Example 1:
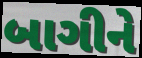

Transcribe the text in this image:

બાગીને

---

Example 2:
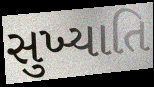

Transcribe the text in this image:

સુખ્યાતિ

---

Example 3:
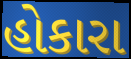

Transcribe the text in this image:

હોકારા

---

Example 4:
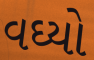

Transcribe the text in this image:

વઘ્યો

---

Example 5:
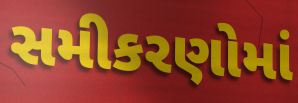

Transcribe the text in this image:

સમીકરણોમાં